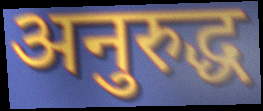
अनुरुद्ध